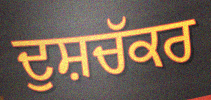
ਦੁਸ਼ਚੱਕਰ